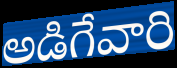
అడిగేవారి